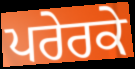
ਪਰੇਰਕੇ